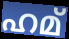
ഹമ്